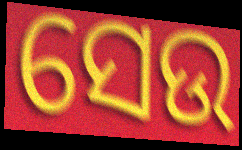
ସେଉ